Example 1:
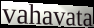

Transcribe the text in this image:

vahavata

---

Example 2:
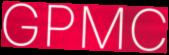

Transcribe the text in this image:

GPMC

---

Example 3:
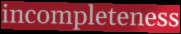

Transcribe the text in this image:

incompleteness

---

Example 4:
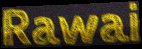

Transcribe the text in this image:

Rawai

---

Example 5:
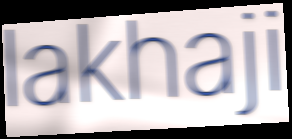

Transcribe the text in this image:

lakhaji